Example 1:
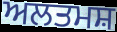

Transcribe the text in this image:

ਅਲਤਮਸ਼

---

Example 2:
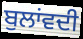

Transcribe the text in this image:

ਬੁਲਾਂਵਦੀ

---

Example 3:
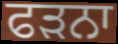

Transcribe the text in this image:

ਫੜਨਾ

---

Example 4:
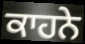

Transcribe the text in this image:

ਕਾਹਨੇ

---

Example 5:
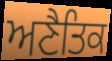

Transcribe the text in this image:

ਅਣੈਤਿਕ